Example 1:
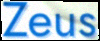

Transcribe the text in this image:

Zeus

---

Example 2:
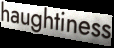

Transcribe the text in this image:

haughtiness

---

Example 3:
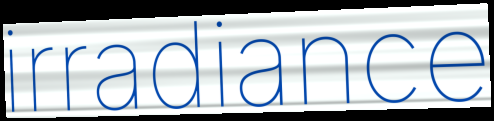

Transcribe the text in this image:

irradiance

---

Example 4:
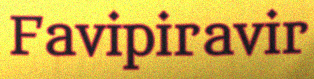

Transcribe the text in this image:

Favipiravir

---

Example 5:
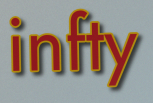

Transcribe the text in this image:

infty